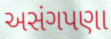
અસંગપણા